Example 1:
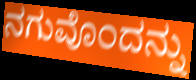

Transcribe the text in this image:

ನಗುವೊಂದನ್ನು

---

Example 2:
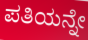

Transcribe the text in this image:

ಪತಿಯನ್ನೇ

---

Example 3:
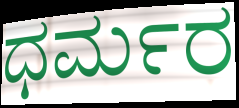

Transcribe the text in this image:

ಧರ್ಮರ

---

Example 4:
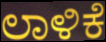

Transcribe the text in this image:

ಲಾಳಿಕೆ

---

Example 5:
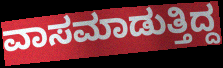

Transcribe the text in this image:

ವಾಸಮಾಡುತ್ತಿದ್ದ